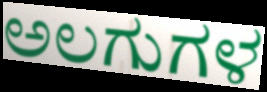
ಅಲಗುಗಳ